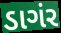
ડાગંર